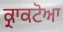
ਕ੍ਰਾਕਟੋਆ